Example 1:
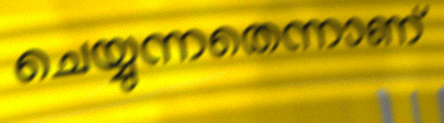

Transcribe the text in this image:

ചെയ്യുന്നതെന്നാണ്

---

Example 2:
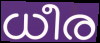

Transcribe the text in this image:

ധീര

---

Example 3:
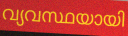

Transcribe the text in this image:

വ്യവസ്ഥയായി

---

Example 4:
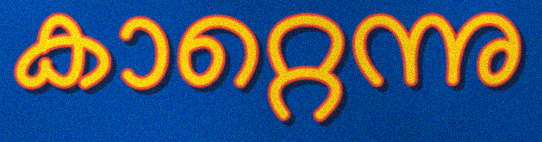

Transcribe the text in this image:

കാറ്റെന്നു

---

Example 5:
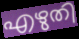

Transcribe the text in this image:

എഴുതി